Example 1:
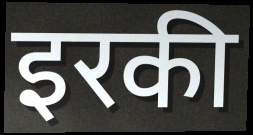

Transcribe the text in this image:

इरकी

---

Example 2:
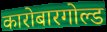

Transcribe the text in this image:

कारोबारगोल्ड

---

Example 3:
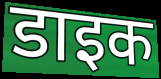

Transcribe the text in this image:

डाइक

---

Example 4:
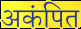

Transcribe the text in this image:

अकंपित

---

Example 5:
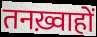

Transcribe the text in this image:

तनख़्वाहों